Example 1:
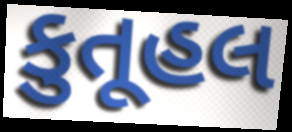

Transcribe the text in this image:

કુતૂહલ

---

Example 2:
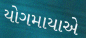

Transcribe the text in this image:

યોગમાયાએ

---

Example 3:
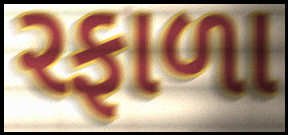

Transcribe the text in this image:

રફાળા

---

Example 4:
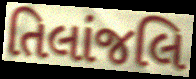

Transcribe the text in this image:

તિલાંજલિ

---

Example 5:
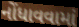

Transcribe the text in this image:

નોંધાવવામાં